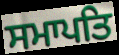
ਸਮਾਪਤਿ